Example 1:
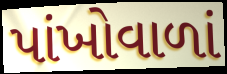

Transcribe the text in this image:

પાંખોવાળાં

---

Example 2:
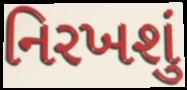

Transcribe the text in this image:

નિરખશું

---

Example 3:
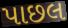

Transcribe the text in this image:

પાછલ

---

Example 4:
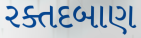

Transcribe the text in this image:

રક્તદબાણ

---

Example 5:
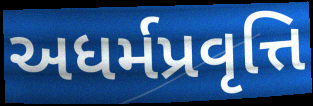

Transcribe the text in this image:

અધર્મપ્રવૃત્તિ